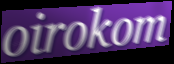
oirokom